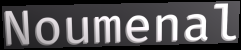
Noumenal